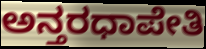
ಅನ್ತರಧಾಪೇತಿ